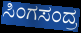
ಸಿಂಗಸಂದ್ರ